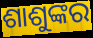
ଶାଶୁଙ୍କର